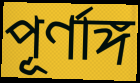
পূৰ্ণাঙ্গ